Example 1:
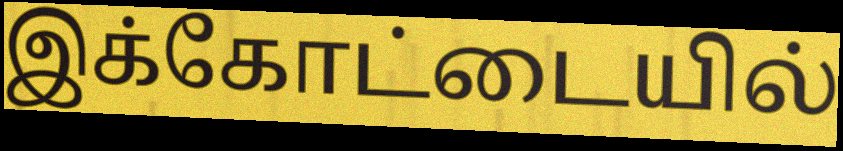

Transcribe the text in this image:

இக்கோட்டையில்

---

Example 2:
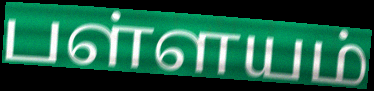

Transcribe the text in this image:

பள்ளயம்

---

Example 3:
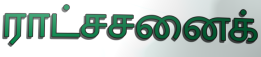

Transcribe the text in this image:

ராட்சசனைக்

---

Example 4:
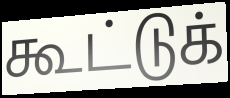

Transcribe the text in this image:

கூட்டுக்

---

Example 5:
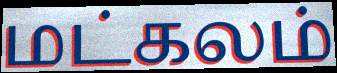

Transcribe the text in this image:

மட்கலம்